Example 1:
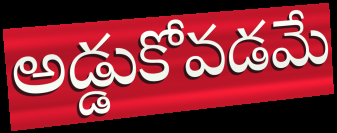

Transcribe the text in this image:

అడ్డుకోవడమే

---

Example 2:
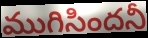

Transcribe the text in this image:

ముగిసిందనీ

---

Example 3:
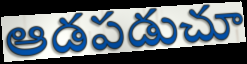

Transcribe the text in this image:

ఆడపడుచూ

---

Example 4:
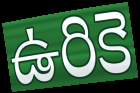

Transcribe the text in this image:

ఉరికె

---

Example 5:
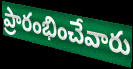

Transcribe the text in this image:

ప్రారంభించేవారు